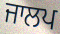
ਜਾਲਪ